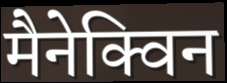
मैनेक्विन